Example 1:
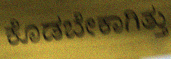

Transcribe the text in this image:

ಕೊಡಬೇಕಾಗಿತ್ತು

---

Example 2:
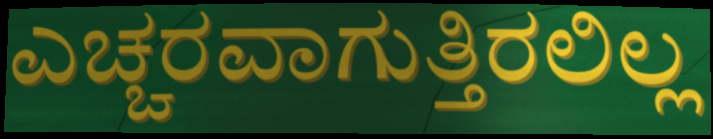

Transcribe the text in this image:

ಎಚ್ಚರವಾಗುತ್ತಿರಲಿಲ್ಲ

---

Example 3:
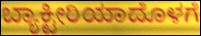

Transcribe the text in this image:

ಬ್ಯಾಕ್ಟೀರಿಯಾದೊಳಗೆ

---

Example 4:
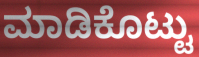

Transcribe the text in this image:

ಮಾಡಿಕೊಟ್ಟು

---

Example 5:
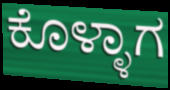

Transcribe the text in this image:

ಕೊಳ್ಳಾಗ